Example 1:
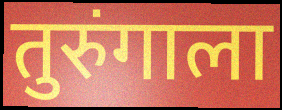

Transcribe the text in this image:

तुरुंगाला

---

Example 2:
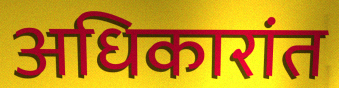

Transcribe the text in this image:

अधिकारांत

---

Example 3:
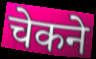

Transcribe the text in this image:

चेकने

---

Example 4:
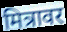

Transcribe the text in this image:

मित्रावर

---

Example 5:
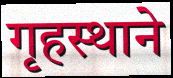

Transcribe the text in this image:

गृहस्थाने